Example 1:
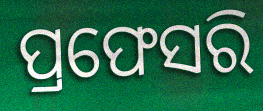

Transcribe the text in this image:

ପ୍ରଫେସରି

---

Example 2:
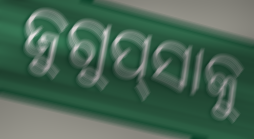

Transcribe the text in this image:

ଜୁଗୁପ୍‍ସାକୁ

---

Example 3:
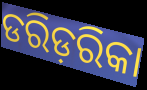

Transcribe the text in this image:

ଡରିଡ଼ରିକା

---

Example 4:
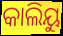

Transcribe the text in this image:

କାଲିୟୁ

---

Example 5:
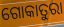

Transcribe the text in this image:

ଗୋକାତୁରା